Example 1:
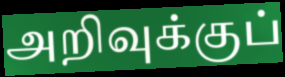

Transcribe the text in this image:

அறிவுக்குப்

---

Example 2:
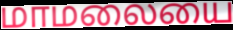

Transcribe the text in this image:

மாமலையை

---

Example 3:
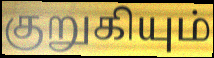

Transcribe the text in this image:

குறுகியும்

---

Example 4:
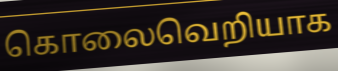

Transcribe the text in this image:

கொலைவெறியாக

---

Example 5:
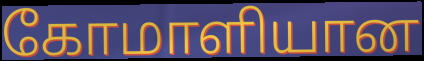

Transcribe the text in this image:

கோமாளியான